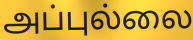
அப்புல்லை